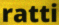
ratti